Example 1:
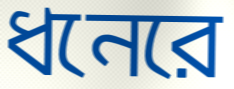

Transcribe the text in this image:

ধনেরে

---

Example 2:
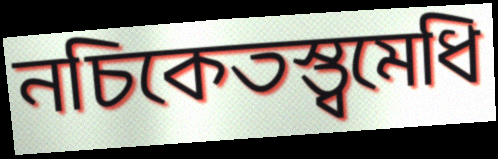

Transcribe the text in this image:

নচিকেতস্ত্বমেধি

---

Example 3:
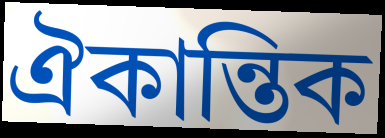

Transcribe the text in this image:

ঐকান্তিক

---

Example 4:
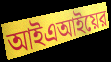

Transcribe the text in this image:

আইএআইয়ের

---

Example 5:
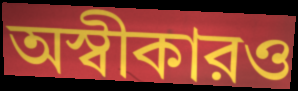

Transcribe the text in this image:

অস্বীকারও